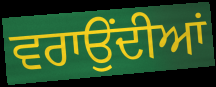
ਵਰਾਉਂਦੀਆਂ